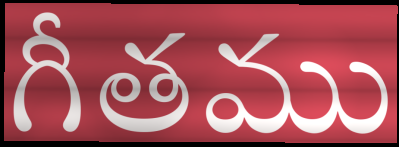
గీతము